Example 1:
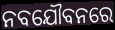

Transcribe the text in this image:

ନବଯୌବନରେ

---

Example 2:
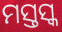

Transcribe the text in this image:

ମସ୍ତସ୍କ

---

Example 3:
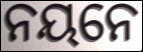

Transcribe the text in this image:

ନୟନେ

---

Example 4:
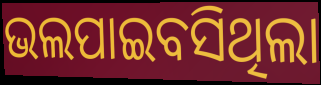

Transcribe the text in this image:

ଭଲପାଇବସିଥିଲା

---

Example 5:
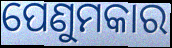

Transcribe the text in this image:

ପେଣୁମକାର